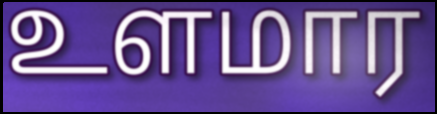
உளமார